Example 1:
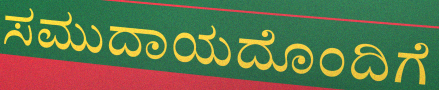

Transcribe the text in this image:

ಸಮುದಾಯದೊಂದಿಗೆ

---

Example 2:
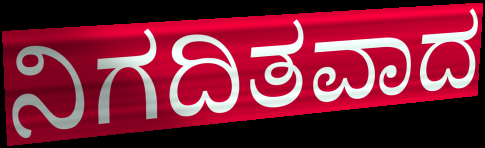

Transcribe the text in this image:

ನಿಗದಿತವಾದ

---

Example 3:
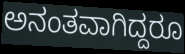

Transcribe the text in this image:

ಅನಂತವಾಗಿದ್ದರೂ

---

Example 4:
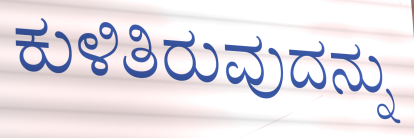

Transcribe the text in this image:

ಕುಳಿತಿರುವುದನ್ನು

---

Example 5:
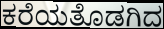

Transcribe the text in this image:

ಕರೆಯತೊಡಗಿದ